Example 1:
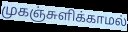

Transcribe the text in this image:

முகஞ்சுளிக்காமல்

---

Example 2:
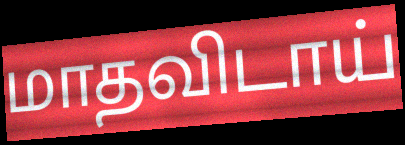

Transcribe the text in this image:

மாதவிடாய்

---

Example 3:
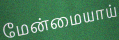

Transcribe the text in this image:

மேன்மையாய்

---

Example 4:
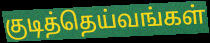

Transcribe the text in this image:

குடித்தெய்வங்கள்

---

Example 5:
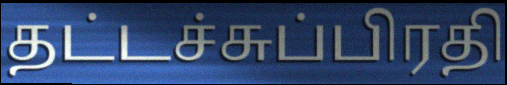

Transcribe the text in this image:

தட்டச்சுப்பிரதி